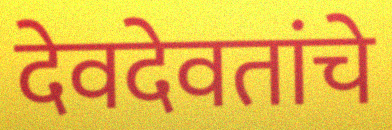
देवदेवतांचे